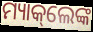
ମ୍ୟାକ୍‌ଲେଙ୍କ